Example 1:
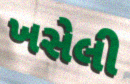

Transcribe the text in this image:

ખસેલી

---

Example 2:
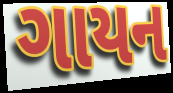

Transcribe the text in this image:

ગાયન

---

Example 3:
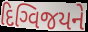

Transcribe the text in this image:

દિગ્વિજયને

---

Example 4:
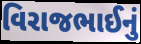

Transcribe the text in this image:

વિરાજભાઈનું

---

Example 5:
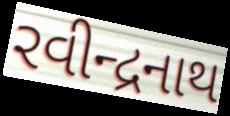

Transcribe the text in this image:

રવીન્દ્રનાથ